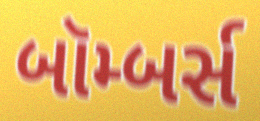
બૉમ્બર્સ